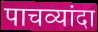
पाचव्यांदा